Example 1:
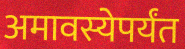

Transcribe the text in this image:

अमावस्येपर्यंत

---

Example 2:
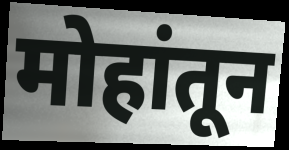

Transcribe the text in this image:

मोहांतून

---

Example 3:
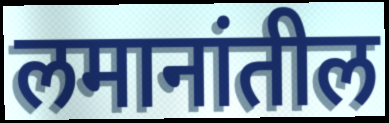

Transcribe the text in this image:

लमानांतील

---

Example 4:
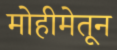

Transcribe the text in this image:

मोहीमेतून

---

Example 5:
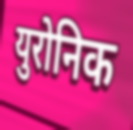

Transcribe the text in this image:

युरोनिक